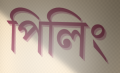
পিলিং